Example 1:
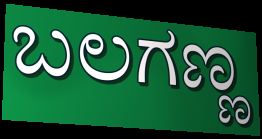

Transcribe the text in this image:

ಬಲಗಣ್ಣ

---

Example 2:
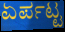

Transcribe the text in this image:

ಏರ್ಪಟ್ಟ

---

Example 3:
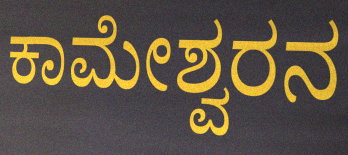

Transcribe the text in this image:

ಕಾಮೇಶ್ವರನ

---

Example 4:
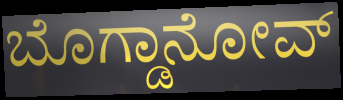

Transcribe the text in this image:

ಬೊಗ್ಡಾನೋವ್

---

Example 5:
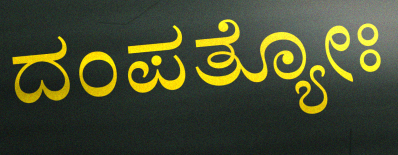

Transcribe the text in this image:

ದಂಪತ್ಯೋಃ